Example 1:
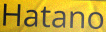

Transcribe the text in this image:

Hatano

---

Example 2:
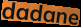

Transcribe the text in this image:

dadane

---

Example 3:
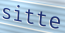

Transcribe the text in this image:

sitte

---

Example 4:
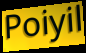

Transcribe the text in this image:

Poiyil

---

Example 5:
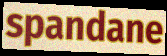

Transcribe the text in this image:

spandane